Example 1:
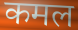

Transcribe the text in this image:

कमल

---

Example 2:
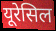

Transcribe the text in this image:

यूरेसिल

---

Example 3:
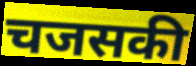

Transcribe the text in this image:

चजसकी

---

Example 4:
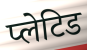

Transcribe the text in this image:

प्लेटिड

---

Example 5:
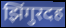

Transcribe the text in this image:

झिंगुरदह